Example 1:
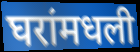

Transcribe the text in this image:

घरांमधली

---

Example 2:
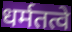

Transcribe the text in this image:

धर्मतत्वे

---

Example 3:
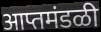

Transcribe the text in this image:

आप्तमंडळी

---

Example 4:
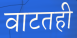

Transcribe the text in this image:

वाटतही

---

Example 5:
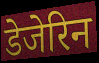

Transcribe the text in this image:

डेजेरिन